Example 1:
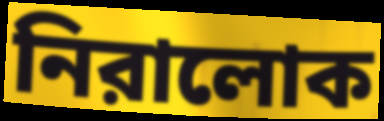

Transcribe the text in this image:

নিরালোক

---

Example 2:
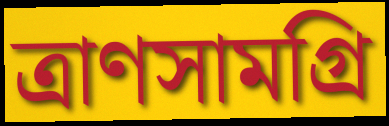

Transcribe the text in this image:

ত্রাণসামগ্রি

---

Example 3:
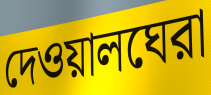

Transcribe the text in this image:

দেওয়ালঘেরা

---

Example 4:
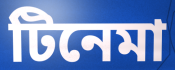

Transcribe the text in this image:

টিনেমা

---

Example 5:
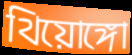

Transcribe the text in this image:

থিয়োঙ্গো